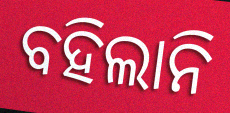
ବହିଲାନି